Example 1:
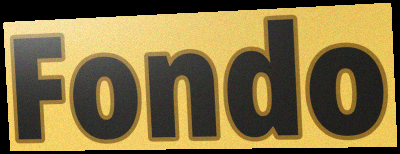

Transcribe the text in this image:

Fondo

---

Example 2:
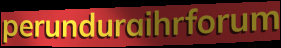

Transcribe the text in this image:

perunduraihrforum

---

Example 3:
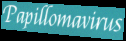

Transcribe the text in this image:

Papillomavirus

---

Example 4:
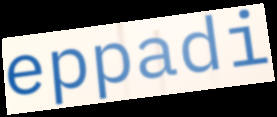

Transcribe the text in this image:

eppadi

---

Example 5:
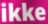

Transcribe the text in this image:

ikke